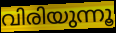
വിരിയുന്നൂ